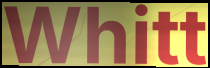
Whitt